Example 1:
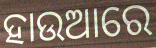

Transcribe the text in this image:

ହାଉଆରେ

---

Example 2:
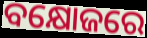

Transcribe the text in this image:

ବକ୍ଷୋଜରେ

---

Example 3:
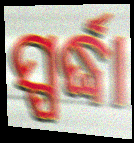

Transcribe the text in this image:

ସ୍ପର୍ଦ୍ଧା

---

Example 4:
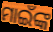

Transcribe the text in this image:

ମାଇଁଙ୍କ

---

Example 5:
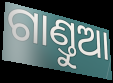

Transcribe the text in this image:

ଗାଣ୍ତୁଆ